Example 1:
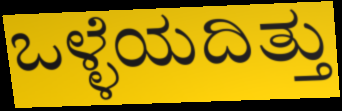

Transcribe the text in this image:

ಒಳ್ಳೆಯದಿತ್ತು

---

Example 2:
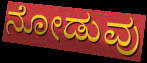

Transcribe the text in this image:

ನೋಡುವು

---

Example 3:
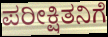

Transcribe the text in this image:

ಪರೀಕ್ಷಿತನಿಗೆ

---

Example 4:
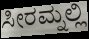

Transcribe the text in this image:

ಸೀರಮ್ನಲ್ಲಿ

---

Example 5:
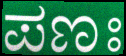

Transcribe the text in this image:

ಪಣಃ